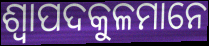
ଶ୍ୱାପଦକୁଳମାନେ